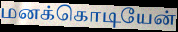
மனக்கொடியேன்